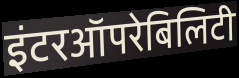
इंटरऑपरेबिलिटी